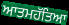
ਆਤਮਹੱਤਿਆ